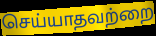
செய்யாதவற்றை